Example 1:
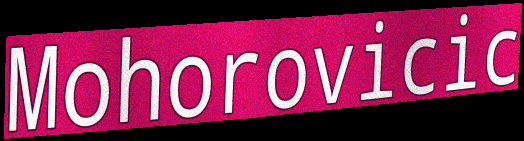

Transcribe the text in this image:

Mohorovicic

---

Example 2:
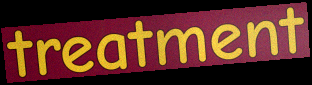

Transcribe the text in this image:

treatment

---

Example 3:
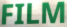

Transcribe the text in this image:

FILM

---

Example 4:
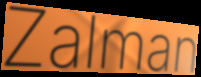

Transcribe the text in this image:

Zalman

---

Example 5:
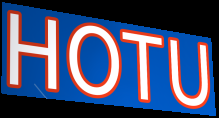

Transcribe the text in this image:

HOTU